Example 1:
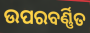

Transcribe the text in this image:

ଉପରବର୍ଣ୍ଣିତ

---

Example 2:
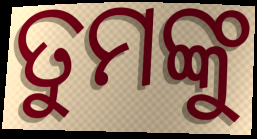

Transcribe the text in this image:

ତୁମଙ୍କୁ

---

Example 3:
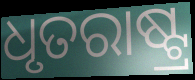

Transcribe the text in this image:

ଧୃତରାଷ୍ଟ୍ର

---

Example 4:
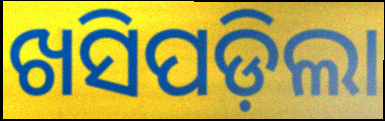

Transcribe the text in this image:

ଖସିପଡ଼ିଲା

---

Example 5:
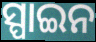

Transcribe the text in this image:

ସ୍ପାଇନ